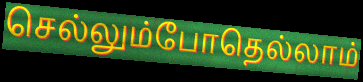
செல்லும்போதெல்லாம்